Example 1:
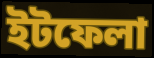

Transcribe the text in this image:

ইটফেলা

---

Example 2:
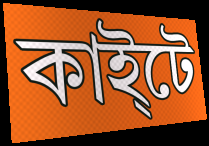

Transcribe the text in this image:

কাই্টে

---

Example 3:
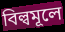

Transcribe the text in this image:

বিল্বমূলে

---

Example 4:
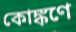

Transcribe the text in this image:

কোঙ্কণে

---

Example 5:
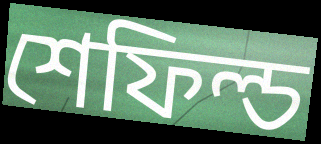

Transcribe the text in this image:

শেফিল্ড